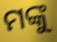
ମଙ୍କୁ